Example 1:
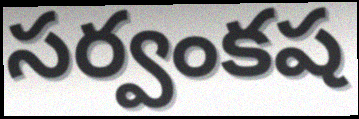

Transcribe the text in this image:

సర్వంకష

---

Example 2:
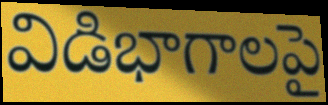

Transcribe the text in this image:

విడిభాగాలపై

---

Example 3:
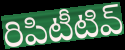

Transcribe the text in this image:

రిపిటీటివ్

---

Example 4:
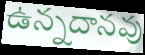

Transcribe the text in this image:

ఉన్నదానవు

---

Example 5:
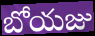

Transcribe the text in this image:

బోయజు